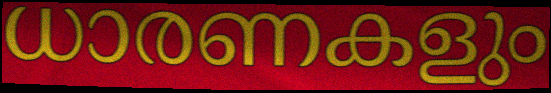
ധാരണകളും